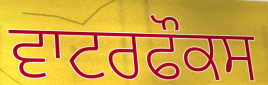
ਵਾਟਰਫੌਕਸ